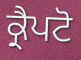
ਕ੍ਰੈਪਟੋ